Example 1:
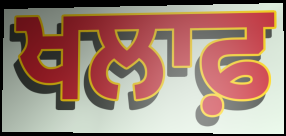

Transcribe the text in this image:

ਖਲਾਫ਼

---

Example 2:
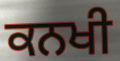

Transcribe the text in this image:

ਕਨਖੀ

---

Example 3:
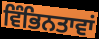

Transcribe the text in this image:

ਵਿੰਭਿਨਤਾਵਾਂ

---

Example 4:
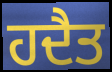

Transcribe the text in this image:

ਹਦੈਤ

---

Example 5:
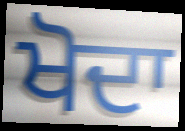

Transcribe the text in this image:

ਖੋਦਾ